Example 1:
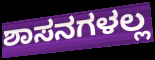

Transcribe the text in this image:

ಶಾಸನಗಳಲ್ಲ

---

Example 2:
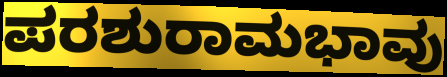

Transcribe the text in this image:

ಪರಶುರಾಮಭಾವು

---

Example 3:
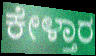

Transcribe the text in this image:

ಕೇಳ್ತಾರ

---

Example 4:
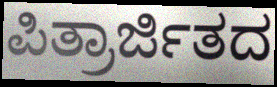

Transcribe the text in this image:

ಪಿತ್ರಾರ್ಜಿತದ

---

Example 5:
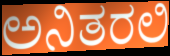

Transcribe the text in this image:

ಅನಿತರಲಿ